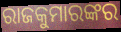
ରାଜକୁମାରଙ୍କର